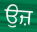
ਉਜ਼